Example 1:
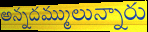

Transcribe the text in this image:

అన్నదమ్ములున్నారు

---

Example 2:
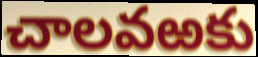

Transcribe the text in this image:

చాలవఱకు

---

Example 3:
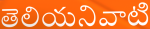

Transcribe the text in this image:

తెలియనివాటి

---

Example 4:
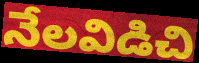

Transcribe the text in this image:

నేలవిడిచి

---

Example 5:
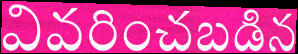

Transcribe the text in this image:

వివరించబడిన